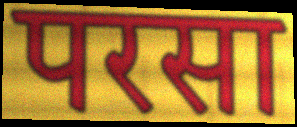
परसा